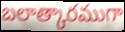
బలాత్కారముగా